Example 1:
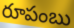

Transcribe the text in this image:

రూపంబు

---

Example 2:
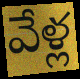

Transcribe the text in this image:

వేళ్ల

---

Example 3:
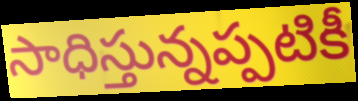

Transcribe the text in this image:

సాధిస్తున్నప్పటికీ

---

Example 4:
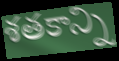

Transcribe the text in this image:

శతకాన్ని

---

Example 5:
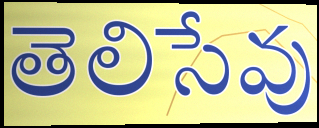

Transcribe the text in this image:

తెలిసేవు